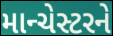
માન્ચેસ્ટરને